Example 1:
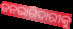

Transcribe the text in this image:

ଜନଭାଗିଦାରୀକୁ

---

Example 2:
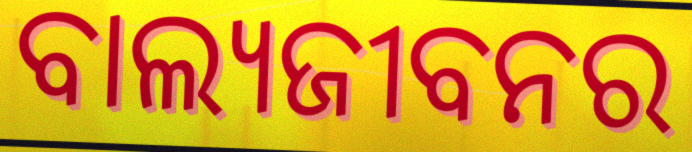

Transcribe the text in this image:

ବାଲ୍ୟଜୀବନର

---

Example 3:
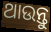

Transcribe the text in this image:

ଥାଉନ୍ତୁ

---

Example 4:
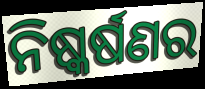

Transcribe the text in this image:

ନିଷ୍କର୍ଷଣର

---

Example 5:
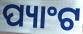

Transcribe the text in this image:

ପ୍ୟାଂଟ